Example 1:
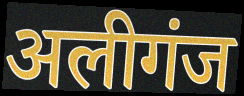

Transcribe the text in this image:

अलीगंज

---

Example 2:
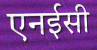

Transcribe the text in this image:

एनईसी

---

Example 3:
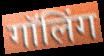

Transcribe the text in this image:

गॉलिंग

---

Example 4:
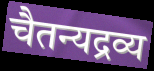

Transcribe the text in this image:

चैतन्यद्रव्य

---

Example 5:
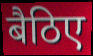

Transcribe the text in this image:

बैठिए